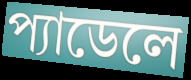
প্যাডেলে